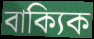
বাক্যিক